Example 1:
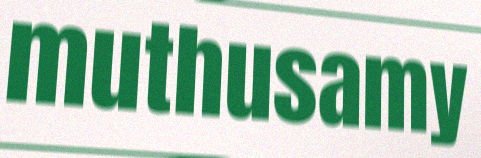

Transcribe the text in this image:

muthusamy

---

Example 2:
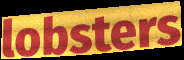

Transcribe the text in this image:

lobsters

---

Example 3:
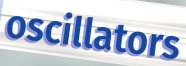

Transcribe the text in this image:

oscillators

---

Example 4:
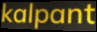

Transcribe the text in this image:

kalpant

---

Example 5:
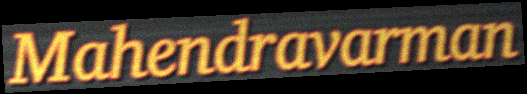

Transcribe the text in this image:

Mahendravarman